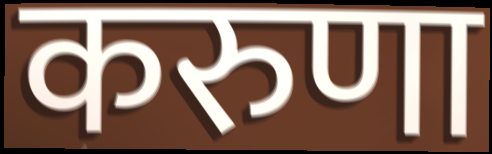
करुणा